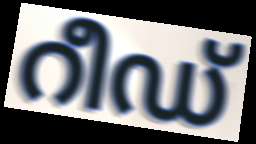
റീഡ്